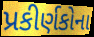
પ્રકીર્ણકોના